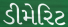
ડીમેરિટ